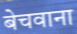
बेचवाना